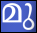
മു